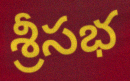
శ్రీసభ